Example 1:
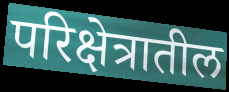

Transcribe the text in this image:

परिक्षेत्रातील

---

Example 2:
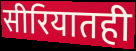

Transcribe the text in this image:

सीरियातही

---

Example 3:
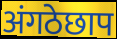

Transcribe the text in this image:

अंगठेछाप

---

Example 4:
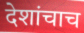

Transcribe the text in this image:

देशांचाच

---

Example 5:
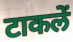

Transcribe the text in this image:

टाकलें